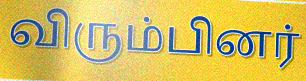
விரும்பினர்